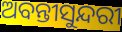
ଅବନ୍ତୀସୁନ୍ଦରୀ